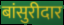
बांसुरीदार